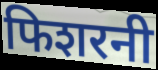
फिशरनी